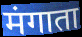
मंगाता